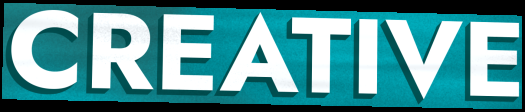
CREATIVE